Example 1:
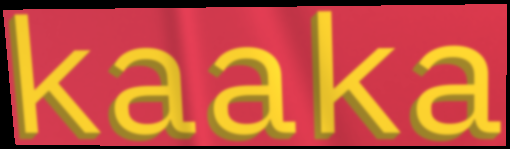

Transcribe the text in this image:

kaaka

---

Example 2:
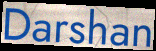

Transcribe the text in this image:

Darshan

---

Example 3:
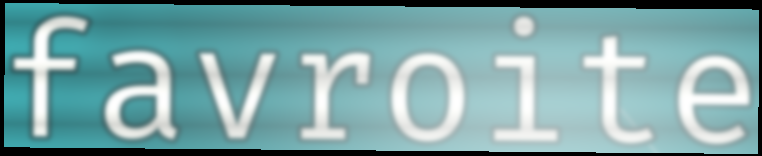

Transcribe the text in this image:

favroite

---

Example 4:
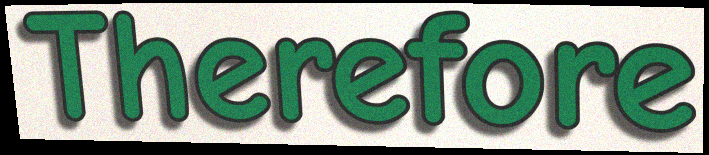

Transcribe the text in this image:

Therefore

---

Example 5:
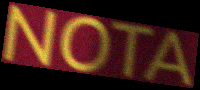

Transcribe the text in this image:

NOTA